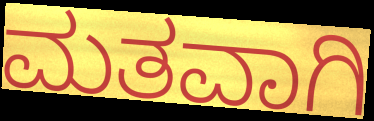
ಮತವಾಗಿ